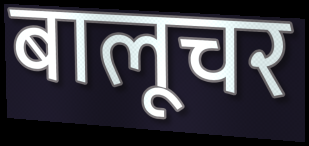
बालूचर